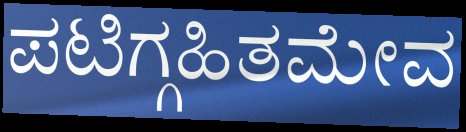
ಪಟಿಗ್ಗಹಿತಮೇವ